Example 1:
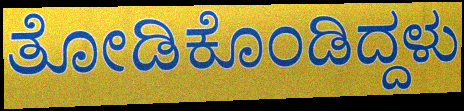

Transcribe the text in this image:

ತೋಡಿಕೊಂಡಿದ್ದಳು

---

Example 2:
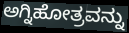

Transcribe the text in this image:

ಅಗ್ನಿಹೋತ್ರವನ್ನು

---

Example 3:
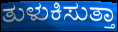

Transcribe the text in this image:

ತುಳುಕಿಸುತ್ತಾ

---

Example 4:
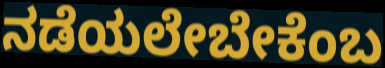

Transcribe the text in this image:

ನಡೆಯಲೇಬೇಕೆಂಬ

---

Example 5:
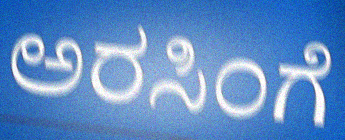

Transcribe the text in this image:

ಅರಸಿಂಗೆ